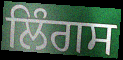
ਲਿੰਗਸ